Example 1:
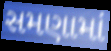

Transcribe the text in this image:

સમણામાં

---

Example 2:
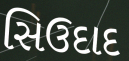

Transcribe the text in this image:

સિઉદાદ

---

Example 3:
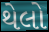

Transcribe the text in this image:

થેલો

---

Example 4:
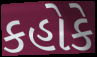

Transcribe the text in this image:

કહોકે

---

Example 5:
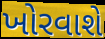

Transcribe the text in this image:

ખોરવાશે